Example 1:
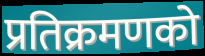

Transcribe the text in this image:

प्रतिक्रमणको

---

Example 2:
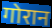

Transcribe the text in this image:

गोरान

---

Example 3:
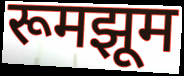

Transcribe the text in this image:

रूमझूम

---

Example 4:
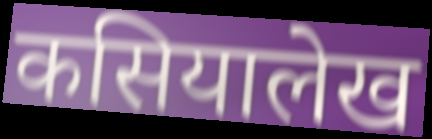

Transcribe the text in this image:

कसियालेख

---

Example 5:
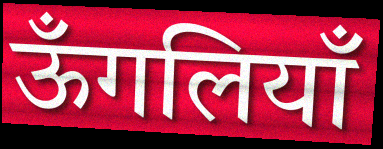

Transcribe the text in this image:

ऊँगलियाँ